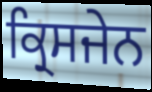
ਕ੍ਰਿਸਜੇਨ